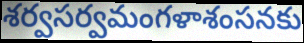
శర్వసర్వమంగళాశంసనకు